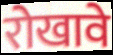
रोखावे